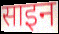
साइन